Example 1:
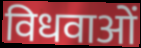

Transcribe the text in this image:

विधवाओं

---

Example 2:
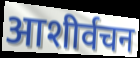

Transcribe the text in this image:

आशीर्वचन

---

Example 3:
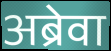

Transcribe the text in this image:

अब्रेवा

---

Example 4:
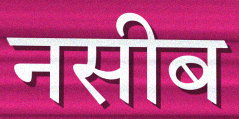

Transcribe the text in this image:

नसीब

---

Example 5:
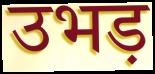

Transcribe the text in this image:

उभड़